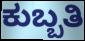
ಕುಬ್ಬತಿ